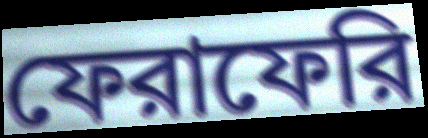
ফেরাফেরি